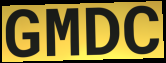
GMDC